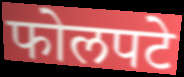
फोलपटे